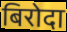
बिरोदा